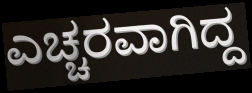
ಎಚ್ಚರವಾಗಿದ್ದ